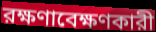
রক্ষণাবেক্ষণকারী